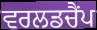
ਵਰਲਡਚੈਂਪ